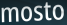
mosto